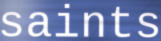
saints